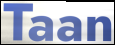
Taan